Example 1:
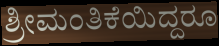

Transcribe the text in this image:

ಶ್ರೀಮಂತಿಕೆಯಿದ್ದರೂ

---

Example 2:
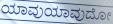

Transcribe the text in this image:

ಯಾವುಯಾವುದೋ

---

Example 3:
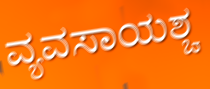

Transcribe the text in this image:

ವ್ಯವಸಾಯಶ್ಚ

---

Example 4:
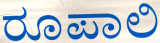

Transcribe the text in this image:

ರೂಪಾಲಿ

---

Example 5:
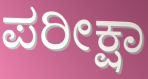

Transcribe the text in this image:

ಪರೀಕ್ಷಾ